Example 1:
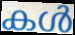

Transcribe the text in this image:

കൾ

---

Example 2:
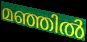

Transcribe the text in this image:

മഞ്ഞിൽ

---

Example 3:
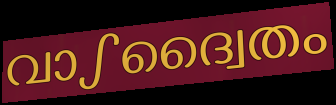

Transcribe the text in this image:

വാഽദ്വൈതം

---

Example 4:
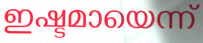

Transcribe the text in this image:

ഇഷ്ടമായെന്ന്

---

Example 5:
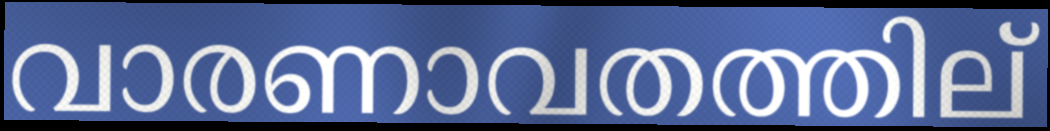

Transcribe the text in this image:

വാരണാവതത്തില്